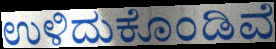
ಉಳಿದುಕೊಂಡಿವೆ